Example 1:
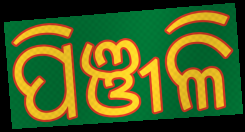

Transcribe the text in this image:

ପିଞ୍ଜଳି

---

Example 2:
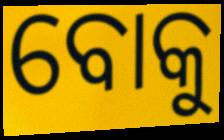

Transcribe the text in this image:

ବୋକୁ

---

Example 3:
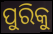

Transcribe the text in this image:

ପୁରିକୁ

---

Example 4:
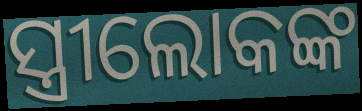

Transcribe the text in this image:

ସ୍ତ୍ରୀଲୋକଙ୍କ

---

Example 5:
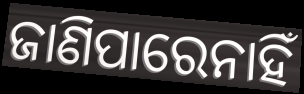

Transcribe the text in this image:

ଜାଣିପାରେନାହିଁ